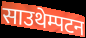
साउथेम्पटन